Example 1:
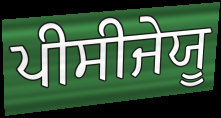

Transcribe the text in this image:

ਪੀਸੀਜੇਯੂ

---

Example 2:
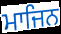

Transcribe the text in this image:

ਮਾਜਿਨ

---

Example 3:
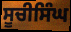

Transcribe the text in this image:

ਸੂਚੀਸਿੰਘ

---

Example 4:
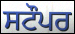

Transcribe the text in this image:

ਸਟੌਪਰ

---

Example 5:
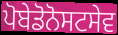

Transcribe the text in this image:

ਪੋਬੇਡੋਨੋਸਟਸੇਵ